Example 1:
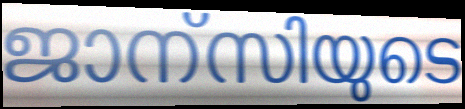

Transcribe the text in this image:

ജാന്സിയുടെ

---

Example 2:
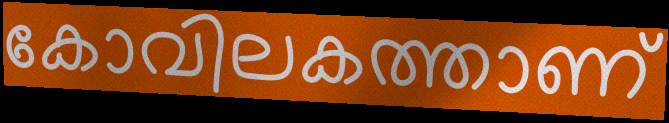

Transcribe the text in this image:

കോവിലകത്താണ്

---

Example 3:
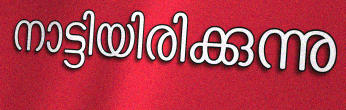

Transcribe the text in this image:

നാട്ടിയിരിക്കുന്നു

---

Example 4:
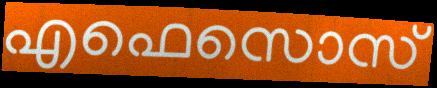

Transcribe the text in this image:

എഫെസൊസ്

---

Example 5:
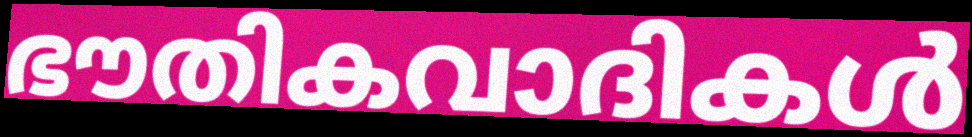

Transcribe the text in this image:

ഭൗതികവാദികൾ